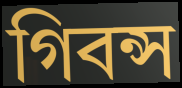
গিবন্স